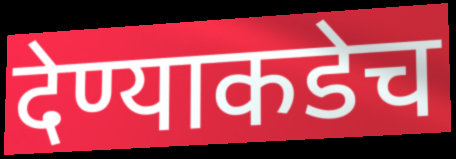
देण्याकडेच